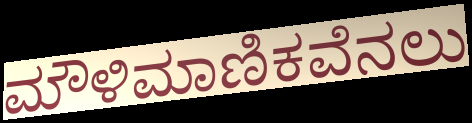
ಮೌಳಿಮಾಣಿಕವೆನಲು